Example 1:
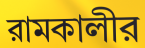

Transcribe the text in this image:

রামকালীর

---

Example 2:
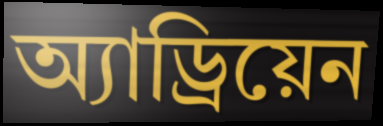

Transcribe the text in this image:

অ্যাড্রিয়েন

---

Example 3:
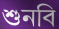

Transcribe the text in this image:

শুনবি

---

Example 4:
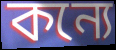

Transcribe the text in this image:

কন্যে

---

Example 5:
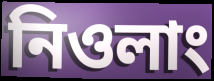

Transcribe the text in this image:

নিওলাং